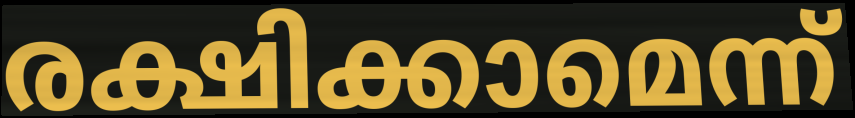
രക്ഷിക്കാമെന്ന്